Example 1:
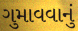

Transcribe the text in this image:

ગુમાવવાનું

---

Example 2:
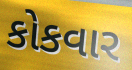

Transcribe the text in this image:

કોકવાર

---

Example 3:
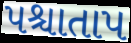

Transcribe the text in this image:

પશ્ચાતાપ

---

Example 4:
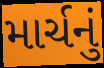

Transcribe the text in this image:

માર્ચનું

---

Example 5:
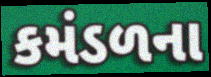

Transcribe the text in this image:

કમંડળના